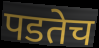
पडतेच